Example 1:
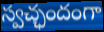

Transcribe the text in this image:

స్వచ్ఛందంగా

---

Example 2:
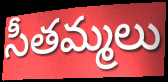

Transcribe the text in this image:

సీతమ్మలు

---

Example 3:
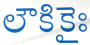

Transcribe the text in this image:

లౌకికైః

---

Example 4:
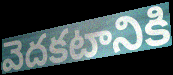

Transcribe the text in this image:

వెదకటానికి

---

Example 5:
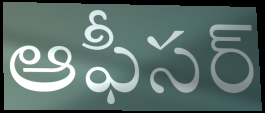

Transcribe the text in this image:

ఆఫీసర్